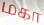
மகா